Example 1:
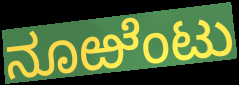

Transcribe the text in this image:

ನೂಱೆಂಟು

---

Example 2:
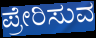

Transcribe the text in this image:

ಪ್ರೇರಿಸುವ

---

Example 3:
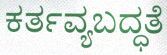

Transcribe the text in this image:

ಕರ್ತವ್ಯಬದ್ಧತೆ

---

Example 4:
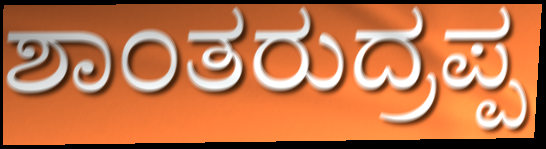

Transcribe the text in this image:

ಶಾಂತರುದ್ರಪ್ಪ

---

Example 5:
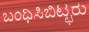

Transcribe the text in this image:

ಬಂಧಿಸಿಬಿಟ್ಟರು